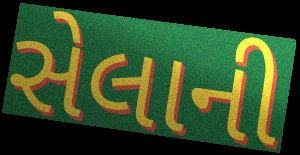
સેલાની